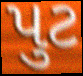
પુટ